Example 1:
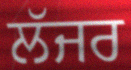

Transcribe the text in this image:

ਲੱਜਰ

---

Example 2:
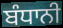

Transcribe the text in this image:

ਬੰਧਾਨੀ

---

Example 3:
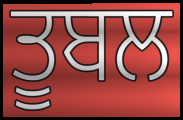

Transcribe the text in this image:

ਤੂਬਲ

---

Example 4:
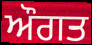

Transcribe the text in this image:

ਔਗਤ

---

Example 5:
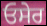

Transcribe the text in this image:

ਓਸੇਰ